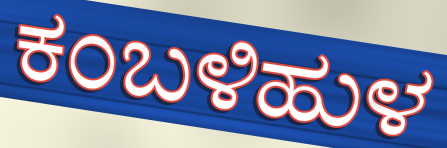
ಕಂಬಳಿಹುಳ